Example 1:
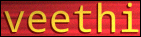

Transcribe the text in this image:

veethi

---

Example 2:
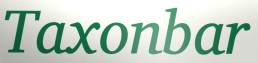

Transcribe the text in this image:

Taxonbar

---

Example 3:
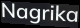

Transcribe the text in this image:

Nagrika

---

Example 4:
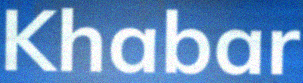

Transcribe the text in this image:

Khabar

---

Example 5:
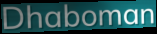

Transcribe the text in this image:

Dhaboman